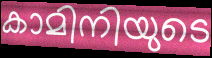
കാമിനിയുടെ